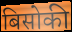
बिसोकी